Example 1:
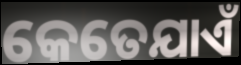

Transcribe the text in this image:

କେତେଯାଏଁ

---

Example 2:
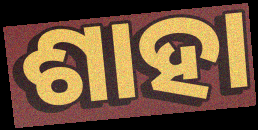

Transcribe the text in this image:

ଶାହା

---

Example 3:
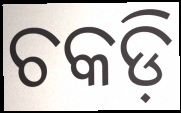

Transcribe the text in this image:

ଚକଡ଼ି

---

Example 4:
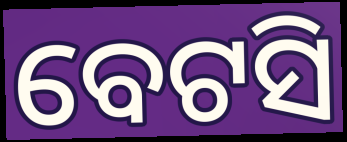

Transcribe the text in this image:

ବେଟସି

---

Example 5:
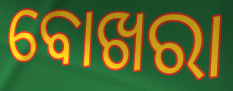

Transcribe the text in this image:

ବୋଖରା